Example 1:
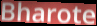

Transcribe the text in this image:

Bharote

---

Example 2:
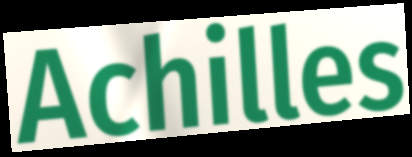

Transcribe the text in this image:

Achilles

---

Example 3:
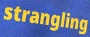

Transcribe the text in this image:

strangling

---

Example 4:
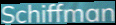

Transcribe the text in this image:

Schiffman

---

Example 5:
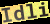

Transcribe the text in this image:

Idli